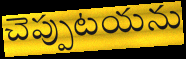
చెప్పుటయను